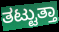
ತಟ್ಟುತ್ತಾ